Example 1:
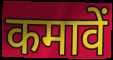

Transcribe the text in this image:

कमावें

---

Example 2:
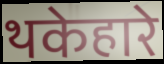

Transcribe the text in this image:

थकेहारे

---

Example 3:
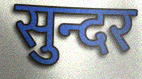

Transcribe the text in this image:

सुन्‍दर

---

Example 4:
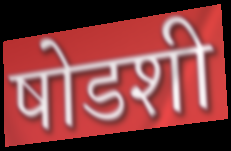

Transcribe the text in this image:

षोडशी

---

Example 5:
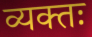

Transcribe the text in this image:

व्यक्तः